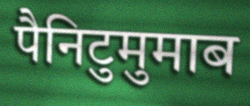
पैनिटुमुमाब